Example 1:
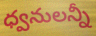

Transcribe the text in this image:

ధ్వనులన్నీ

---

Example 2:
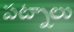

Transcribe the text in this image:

పట్నాలు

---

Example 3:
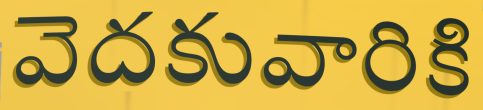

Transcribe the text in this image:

వెదకువారికి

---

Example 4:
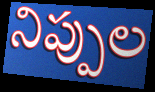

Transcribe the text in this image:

నిప్పుల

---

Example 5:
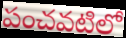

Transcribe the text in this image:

పంచవటిలో